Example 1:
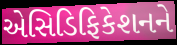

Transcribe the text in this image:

એસિડિફિકેશનને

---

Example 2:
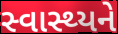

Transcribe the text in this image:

સ્વાસ્થ્યને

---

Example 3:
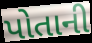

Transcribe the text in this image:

પોતાની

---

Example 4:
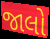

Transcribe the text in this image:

જાલો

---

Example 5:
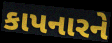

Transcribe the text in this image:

કાપનારને